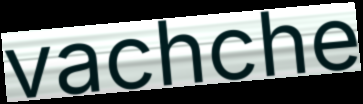
vachche